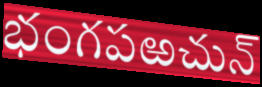
భంగపఱచున్